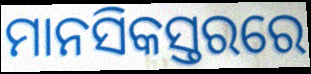
ମାନସିକସ୍ତରରେ